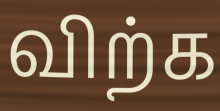
விற்க